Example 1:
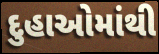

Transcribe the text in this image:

દુહાઓમાંથી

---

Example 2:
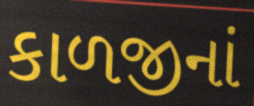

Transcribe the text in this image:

કાળજીનાં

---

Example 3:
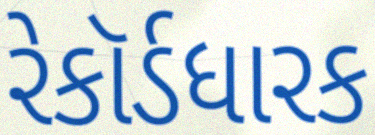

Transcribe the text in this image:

રેકૉર્ડધારક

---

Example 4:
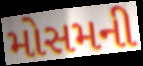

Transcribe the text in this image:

મોસમની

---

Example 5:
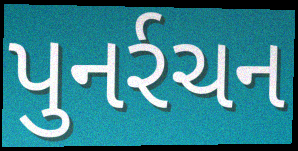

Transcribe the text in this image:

પુનર્રચન